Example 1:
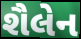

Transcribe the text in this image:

શૈલેન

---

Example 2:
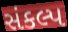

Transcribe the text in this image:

સંકલ્પ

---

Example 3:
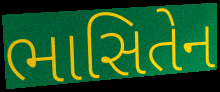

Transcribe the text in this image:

ભાસિતેન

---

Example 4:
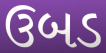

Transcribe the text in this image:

ઉબડ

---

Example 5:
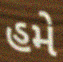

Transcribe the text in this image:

હમે